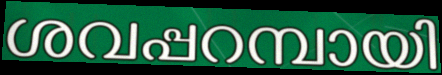
ശവപ്പറമ്പായി